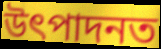
উৎপাদনত